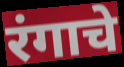
रंगाचे